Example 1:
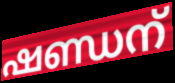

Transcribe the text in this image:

ഷണ്ഡന്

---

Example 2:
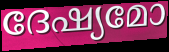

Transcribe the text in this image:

ദേഷ്യമോ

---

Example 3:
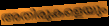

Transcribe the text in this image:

അതിരുകളെയും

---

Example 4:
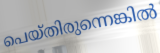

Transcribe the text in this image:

പെയ്തിരുന്നെങ്കിൽ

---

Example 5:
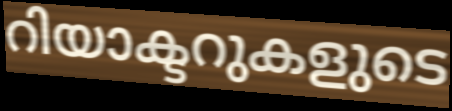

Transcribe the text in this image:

റിയാക്ടറുകളുടെ